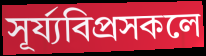
সূৰ্য্যবিপ্ৰসকলে